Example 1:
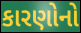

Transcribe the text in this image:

કારણોનો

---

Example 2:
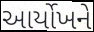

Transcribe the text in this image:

આર્યોખને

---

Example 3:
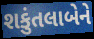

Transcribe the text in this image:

શકુંતલાબેને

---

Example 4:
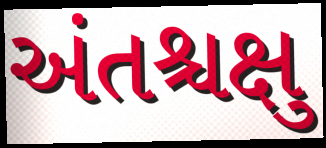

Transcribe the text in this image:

અંતશ્ચક્ષુ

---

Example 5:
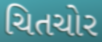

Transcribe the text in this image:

ચિતચોર